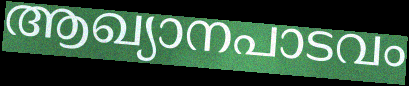
ആഖ്യാനപാടവം